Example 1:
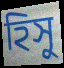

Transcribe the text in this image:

হিসু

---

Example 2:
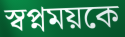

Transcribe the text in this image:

স্বপ্নময়কে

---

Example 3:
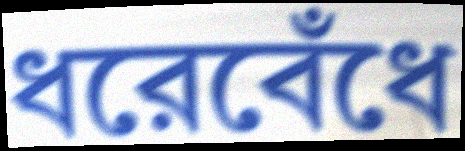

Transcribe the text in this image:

ধরেবেঁধে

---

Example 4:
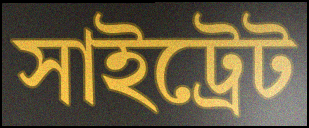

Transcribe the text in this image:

সাইট্রেট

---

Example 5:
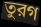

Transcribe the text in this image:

তুরগ